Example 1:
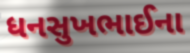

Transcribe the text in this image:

ધનસુખભાઈના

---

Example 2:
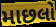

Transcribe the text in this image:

માછલો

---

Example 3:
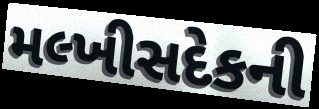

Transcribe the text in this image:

મલ્ખીસદેકની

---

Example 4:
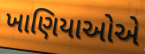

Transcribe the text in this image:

ખાણિયાઓએ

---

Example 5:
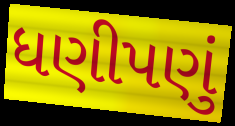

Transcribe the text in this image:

ધણીપણું